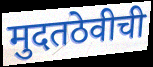
मुदतठेवीची